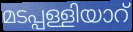
മടപ്പള്ളിയാറ്